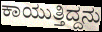
ಕಾಯುತ್ತಿದ್ದನು